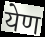
येण